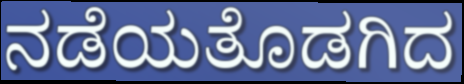
ನಡೆಯತೊಡಗಿದ